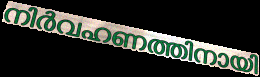
നിർവഹണത്തിനായി